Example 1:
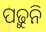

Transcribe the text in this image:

ପଢ଼ୁନି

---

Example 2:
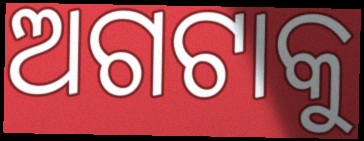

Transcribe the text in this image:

ଅଗଟାକୁ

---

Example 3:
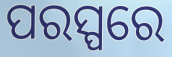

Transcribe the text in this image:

ପରସ୍ପରେ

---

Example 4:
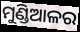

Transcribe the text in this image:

ମୁଣ୍ଡିଆଳର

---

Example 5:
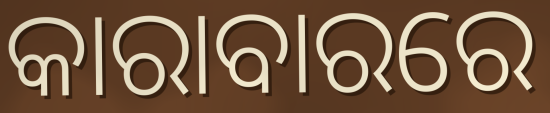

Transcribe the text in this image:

କାରାବାରରେ